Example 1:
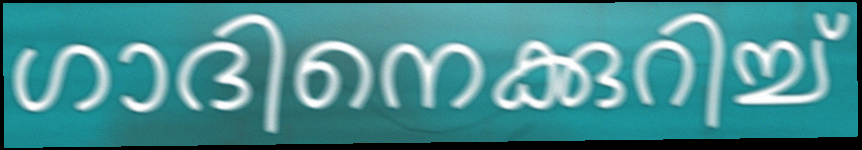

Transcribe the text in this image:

ഗാദിനെക്കുറിച്ച്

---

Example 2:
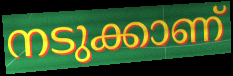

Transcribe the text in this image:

നടുക്കാണ്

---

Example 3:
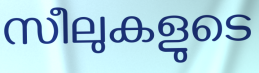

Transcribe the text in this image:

സീലുകളുടെ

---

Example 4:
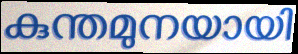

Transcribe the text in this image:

കുന്തമുനയായി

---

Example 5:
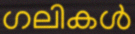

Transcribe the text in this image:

ഗലികൾ